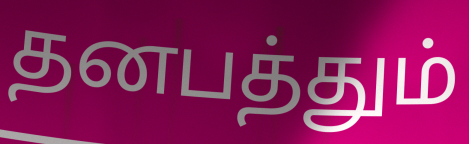
தனபத்தும்